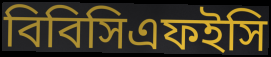
বিবিসিএফইসি